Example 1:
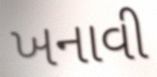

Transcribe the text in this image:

ખનાવી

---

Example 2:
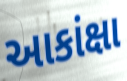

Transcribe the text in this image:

આકાંક્ષા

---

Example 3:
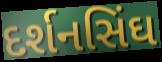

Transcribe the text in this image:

દર્શનસિંઘ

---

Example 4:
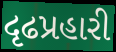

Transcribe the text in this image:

દૃઢપ્રહારી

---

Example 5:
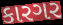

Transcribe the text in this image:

કારગર